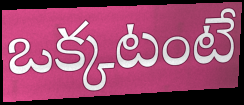
ఒక్కటంటే